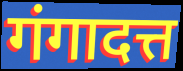
गंगादत्त